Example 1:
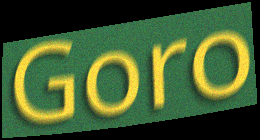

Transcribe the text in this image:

Goro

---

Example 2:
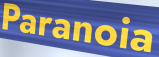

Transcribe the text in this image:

Paranoia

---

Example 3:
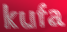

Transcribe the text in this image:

kufa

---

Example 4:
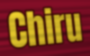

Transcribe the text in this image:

Chiru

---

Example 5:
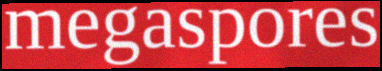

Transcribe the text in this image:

megaspores